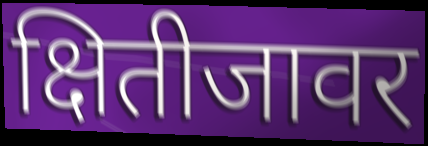
क्षितीजावर